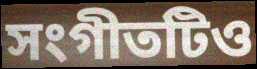
সংগীতটিও